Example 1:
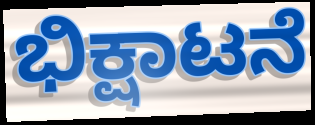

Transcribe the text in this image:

ಭಿಕ್ಷಾಟನೆ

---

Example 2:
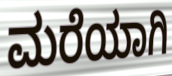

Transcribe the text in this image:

ಮರೆಯಾಗಿ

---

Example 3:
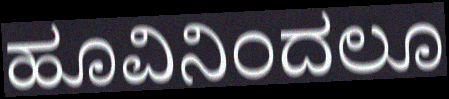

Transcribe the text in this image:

ಹೂವಿನಿಂದಲೂ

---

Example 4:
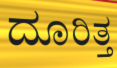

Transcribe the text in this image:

ದೂರಿತ್ತ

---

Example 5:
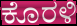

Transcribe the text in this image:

ಕೊರಳಿ